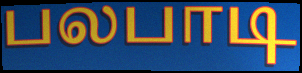
பலபாடி